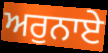
ਅਰੁਨਾਏ